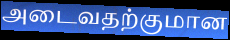
அடைவதற்குமான